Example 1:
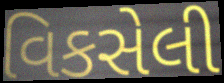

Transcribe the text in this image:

વિકસેલી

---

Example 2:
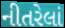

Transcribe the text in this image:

નીતરેલાં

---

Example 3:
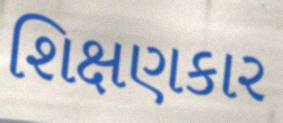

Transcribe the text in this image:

શિક્ષણકાર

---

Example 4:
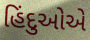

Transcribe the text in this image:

હિંદુઓએ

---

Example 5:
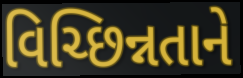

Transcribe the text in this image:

વિચ્છિન્નતાને